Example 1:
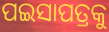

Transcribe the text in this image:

ପଇସାପତ୍ରକୁ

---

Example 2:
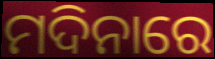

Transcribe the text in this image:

ମଦିନାରେ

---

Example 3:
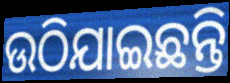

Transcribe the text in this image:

ଉଠିଯାଇଛନ୍ତି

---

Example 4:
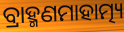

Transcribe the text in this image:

ବ୍ରାହ୍ମଣମାହାତ୍ମ୍ୟ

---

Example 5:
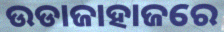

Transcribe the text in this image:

ଉଡାଜାହାଜରେ